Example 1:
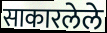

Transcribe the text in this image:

साकारलेले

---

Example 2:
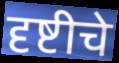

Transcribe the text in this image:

दृष्टीचे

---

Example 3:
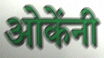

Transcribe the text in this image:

ओकेंनी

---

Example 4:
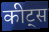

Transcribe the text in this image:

कीट्‌स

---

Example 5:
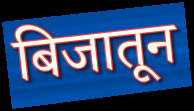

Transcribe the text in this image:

बिजातून